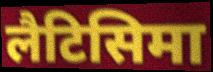
लैटिसिमा